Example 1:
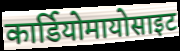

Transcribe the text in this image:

कार्डियोमायोसाइट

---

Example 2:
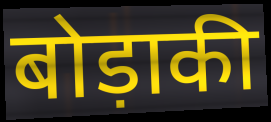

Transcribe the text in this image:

बोड़ाकी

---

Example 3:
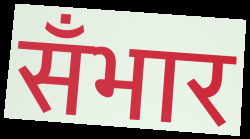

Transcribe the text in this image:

सँभार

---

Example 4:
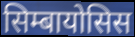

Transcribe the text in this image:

सिम्बायोसिस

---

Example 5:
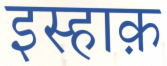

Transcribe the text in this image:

इस्हाक़